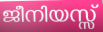
ജീനിയസ്സ്